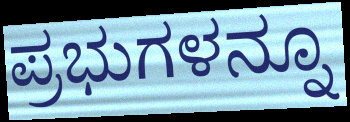
ಪ್ರಭುಗಳನ್ನೂ